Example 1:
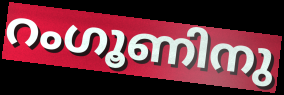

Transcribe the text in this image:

റംഗൂണിനു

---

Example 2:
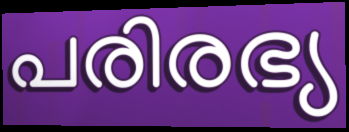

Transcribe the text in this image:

പരിരഭ്യ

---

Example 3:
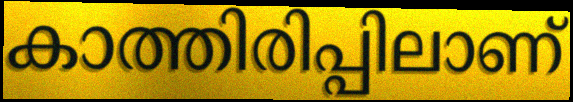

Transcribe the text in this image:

കാത്തിരിപ്പിലാണ്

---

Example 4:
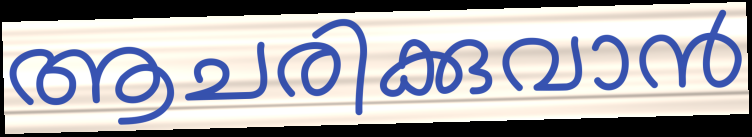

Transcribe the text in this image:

ആചരിക്കുവാൻ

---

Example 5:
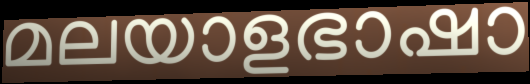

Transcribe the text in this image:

മലയാളഭാഷാ